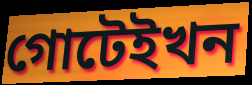
গোটেইখন